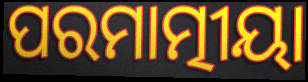
ପରମାତ୍ମୀୟା